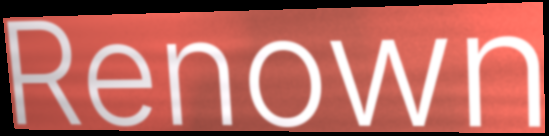
Renown